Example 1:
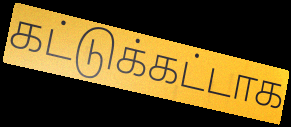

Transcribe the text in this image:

கட்டுக்கட்டாக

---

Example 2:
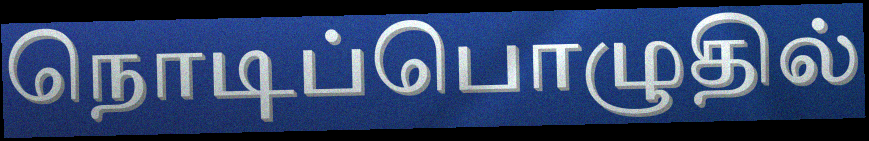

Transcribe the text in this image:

நொடிப்பொழுதில்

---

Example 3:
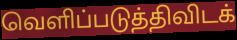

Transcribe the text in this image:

வெளிப்படுத்திவிடக்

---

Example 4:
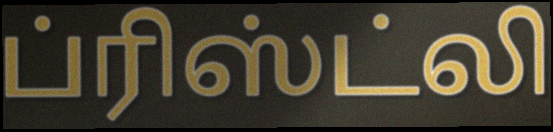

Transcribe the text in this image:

ப்ரிஸ்ட்லி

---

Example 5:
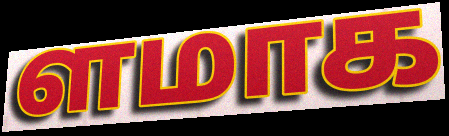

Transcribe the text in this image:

ளமாக